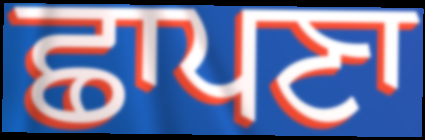
ਛਾਪਣਾ